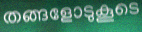
തങ്ങളോടുകൂടെ